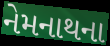
નેમનાથના